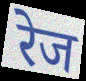
रेज